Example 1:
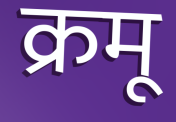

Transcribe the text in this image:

क्रमू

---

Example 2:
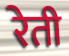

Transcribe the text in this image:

रेती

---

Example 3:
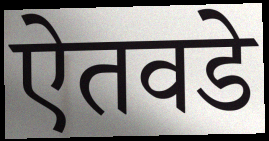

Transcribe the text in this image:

ऐतवडे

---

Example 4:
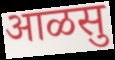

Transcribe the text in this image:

आळसु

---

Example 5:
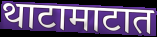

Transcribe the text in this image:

थाटामाटात